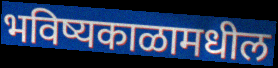
भविष्यकाळामधील